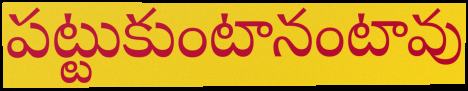
పట్టుకుంటానంటావు